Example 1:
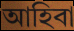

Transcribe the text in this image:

আহিবা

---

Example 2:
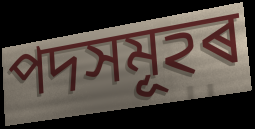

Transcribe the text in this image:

পদসমূহৰ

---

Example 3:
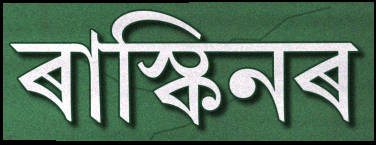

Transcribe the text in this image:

ৰাস্কিনৰ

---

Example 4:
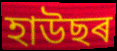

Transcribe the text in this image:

হাউছৰ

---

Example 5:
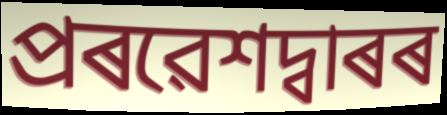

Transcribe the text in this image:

প্ৰৰৱেশদ্বাৰৰ